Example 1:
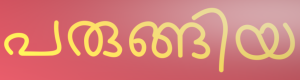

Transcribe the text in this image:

പരുങ്ങിയ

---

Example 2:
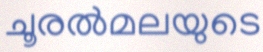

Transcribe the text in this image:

ചൂരൽമലയുടെ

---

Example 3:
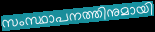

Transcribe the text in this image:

സംസ്ഥാപനത്തിനുമായി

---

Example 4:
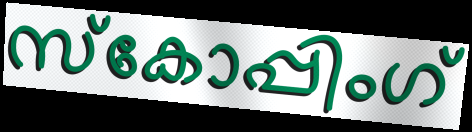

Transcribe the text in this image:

സ്കോപ്പിംഗ്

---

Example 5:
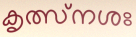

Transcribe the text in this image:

കൃത്സ്നശഃ